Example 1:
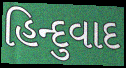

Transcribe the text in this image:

હિન્દુવાદ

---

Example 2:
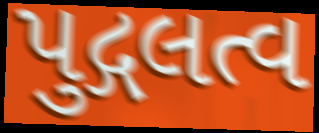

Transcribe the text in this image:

પુદ્ગલત્વ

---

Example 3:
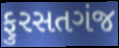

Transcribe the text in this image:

ફુરસતગંજ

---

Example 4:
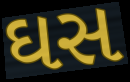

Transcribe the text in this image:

ઘસ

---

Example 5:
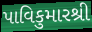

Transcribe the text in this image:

પાવિકુમારશ્રી